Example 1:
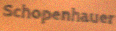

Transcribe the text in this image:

Schopenhauer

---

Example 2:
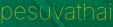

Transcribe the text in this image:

pesuvathai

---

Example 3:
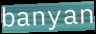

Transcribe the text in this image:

banyan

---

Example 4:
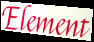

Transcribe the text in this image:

Element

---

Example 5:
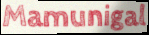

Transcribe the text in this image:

Mamunigal